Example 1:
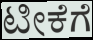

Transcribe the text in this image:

ಟೀಕೆಗೆ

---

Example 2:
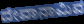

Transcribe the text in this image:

ದೇವಾನಾಮಿವ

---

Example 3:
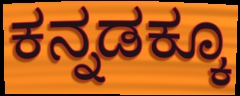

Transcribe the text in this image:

ಕನ್ನಡಕ್ಕೂ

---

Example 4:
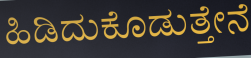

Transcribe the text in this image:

ಹಿಡಿದುಕೊಡುತ್ತೇನೆ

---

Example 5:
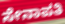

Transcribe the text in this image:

ಸೇನಾಪತಿ